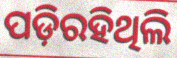
ପଡ଼ିରହିଥିଲି